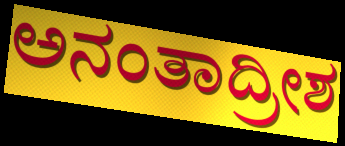
ಅನಂತಾದ್ರೀಶ